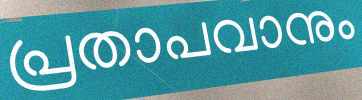
പ്രതാപവാനും